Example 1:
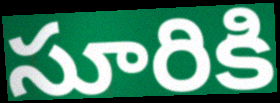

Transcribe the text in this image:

సూరికి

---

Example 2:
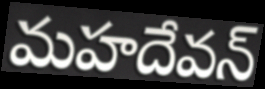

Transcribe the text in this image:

మహదేవన్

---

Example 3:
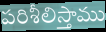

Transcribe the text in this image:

పరిశీలిస్తాము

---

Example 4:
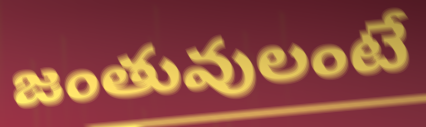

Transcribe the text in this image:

జంతువులంటే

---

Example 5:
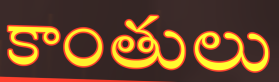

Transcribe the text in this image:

కాంతులు